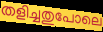
തളിച്ചതുപോലെ